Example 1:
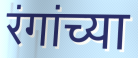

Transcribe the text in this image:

रंगांच्या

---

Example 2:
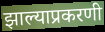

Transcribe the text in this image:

झाल्याप्रकरणी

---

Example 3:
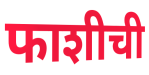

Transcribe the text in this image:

फाशीची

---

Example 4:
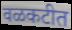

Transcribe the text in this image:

वळकटीत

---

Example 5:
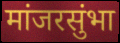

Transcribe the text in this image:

मांजरसुंभा